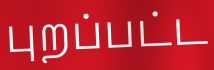
புறப்பட்ட